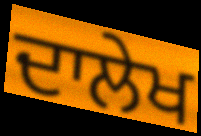
ਦਾਲੇਖ